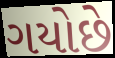
ગયોછે